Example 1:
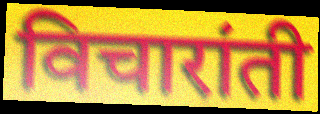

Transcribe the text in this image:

विचारांती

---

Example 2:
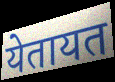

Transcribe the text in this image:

येतायत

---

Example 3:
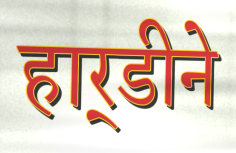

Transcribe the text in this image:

हार्डीने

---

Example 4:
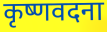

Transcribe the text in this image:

कृष्णवदना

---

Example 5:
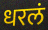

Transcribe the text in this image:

धरलं